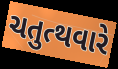
ચતુત્થવારે